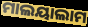
ମାଲୟାଲାମ